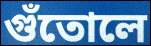
গুঁতোলে